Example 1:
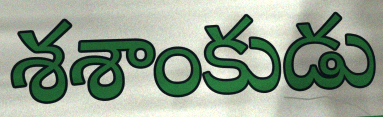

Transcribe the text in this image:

శశాంకుడు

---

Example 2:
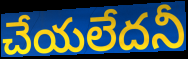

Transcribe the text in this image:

చేయలేదనీ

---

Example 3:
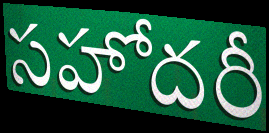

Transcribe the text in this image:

సహోదరీ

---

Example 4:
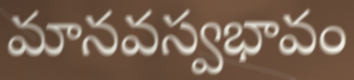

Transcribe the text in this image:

మానవస్వభావం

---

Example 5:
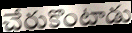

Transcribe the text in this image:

చేరుకొంటాడు